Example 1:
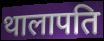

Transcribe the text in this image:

थालापति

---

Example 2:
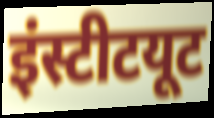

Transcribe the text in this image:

इंस्टीटयूट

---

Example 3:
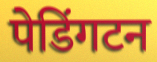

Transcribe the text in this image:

पेडिंगटन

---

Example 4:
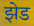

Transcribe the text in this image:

झेड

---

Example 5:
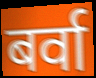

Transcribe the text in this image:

बर्वा